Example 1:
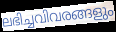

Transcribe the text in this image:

ലഭിച്ചവിവരങ്ങളും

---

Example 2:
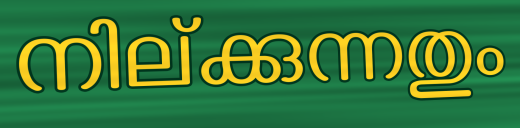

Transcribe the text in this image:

നില്ക്കുന്നതും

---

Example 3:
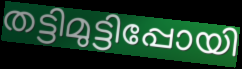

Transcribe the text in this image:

തട്ടിമുട്ടിപ്പോയി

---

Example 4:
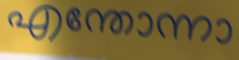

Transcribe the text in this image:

എന്തോന്നാ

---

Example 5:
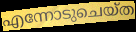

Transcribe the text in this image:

എന്നോടുചെയ്ത